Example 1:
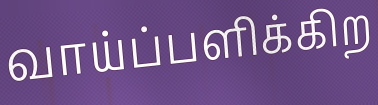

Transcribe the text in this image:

வாய்ப்பளிக்கிற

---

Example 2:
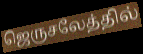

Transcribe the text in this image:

ஜெருசலேத்தில்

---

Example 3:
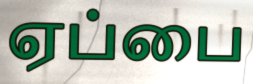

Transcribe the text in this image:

ஏப்பை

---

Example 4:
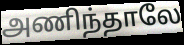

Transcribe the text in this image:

அணிந்தாலே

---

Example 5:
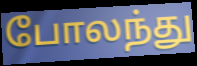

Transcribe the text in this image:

போலந்து